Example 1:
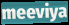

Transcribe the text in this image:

meeviya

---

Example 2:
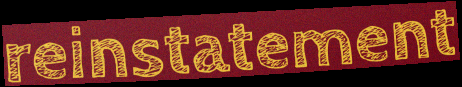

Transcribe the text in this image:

reinstatement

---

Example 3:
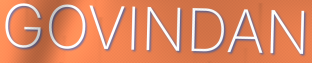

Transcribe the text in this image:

GOVINDAN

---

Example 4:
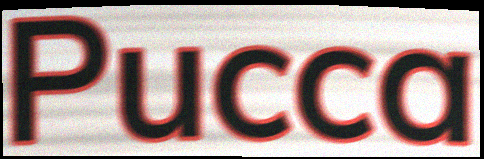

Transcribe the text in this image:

Pucca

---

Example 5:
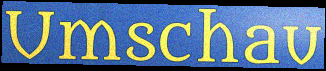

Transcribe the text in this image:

Umschau